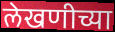
लेखणीच्या